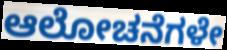
ಆಲೋಚನೆಗಳೇ